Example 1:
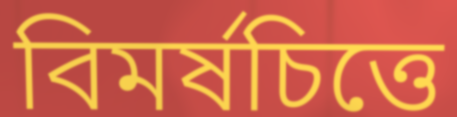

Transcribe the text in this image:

বিমর্ষচিত্তে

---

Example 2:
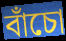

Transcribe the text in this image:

বাঁচো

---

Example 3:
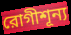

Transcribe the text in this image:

রোগীশূন্য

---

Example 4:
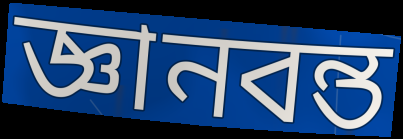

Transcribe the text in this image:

জ্ঞানবন্ত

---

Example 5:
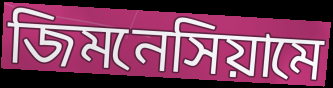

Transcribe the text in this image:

জিমনেসিয়ামে